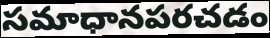
సమాధానపరచడం